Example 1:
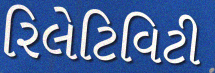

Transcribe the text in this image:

રિલેટિવિટી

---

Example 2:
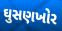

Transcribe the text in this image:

ઘુસણખોર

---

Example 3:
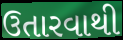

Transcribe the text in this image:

ઉતારવાથી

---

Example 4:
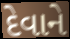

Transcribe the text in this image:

દેવાને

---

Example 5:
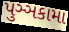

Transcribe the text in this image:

પુઞ્ઞકામા